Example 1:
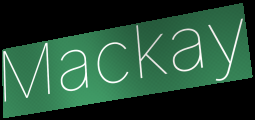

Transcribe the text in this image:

Mackay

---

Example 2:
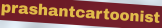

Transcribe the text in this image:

prashantcartoonist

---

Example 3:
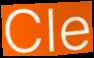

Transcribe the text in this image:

Cle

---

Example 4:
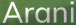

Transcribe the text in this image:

Arani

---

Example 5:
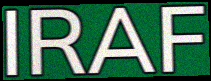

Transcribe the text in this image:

IRAF